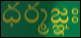
ధర్మజ్ఞః